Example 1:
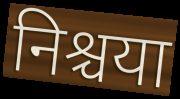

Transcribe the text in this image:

निश्चया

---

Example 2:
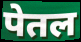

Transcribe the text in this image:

पेतल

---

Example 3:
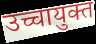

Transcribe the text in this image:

उच्‍चायुक्‍त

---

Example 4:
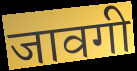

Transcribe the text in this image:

जावगी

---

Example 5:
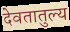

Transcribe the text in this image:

देवतातुल्य